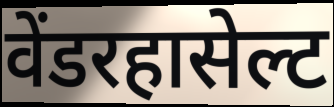
वेंडरहासेल्ट